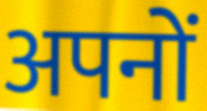
अपनों